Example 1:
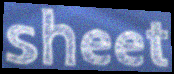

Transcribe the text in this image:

sheet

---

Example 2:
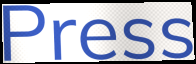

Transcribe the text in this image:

Press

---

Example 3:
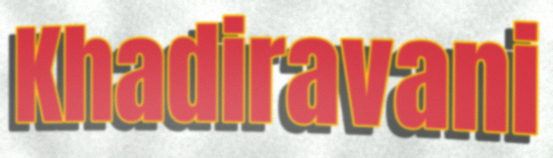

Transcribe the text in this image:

Khadiravani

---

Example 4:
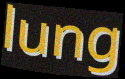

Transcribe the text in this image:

lung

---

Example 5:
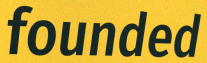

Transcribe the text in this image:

founded